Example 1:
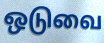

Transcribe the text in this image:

ஒடுவை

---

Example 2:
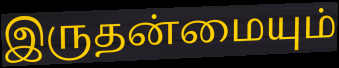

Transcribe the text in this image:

இருதன்மையும்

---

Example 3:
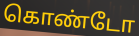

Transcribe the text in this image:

கொண்டோ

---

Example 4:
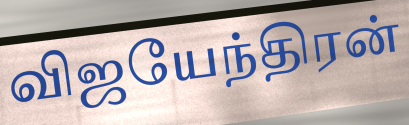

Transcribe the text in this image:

விஜயேந்திரன்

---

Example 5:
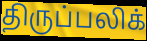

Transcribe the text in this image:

திருப்பலிக்